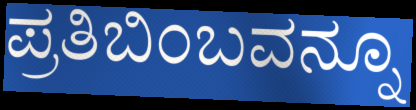
ಪ್ರತಿಬಿಂಬವನ್ನೂ